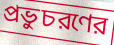
প্রভুচরণের